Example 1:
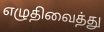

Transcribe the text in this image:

எழுதிவைத்து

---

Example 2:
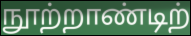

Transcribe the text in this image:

நூற்றாண்டிற்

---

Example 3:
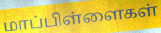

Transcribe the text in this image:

மாப்பிள்ளைகள்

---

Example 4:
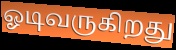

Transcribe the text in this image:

ஓடிவருகிறது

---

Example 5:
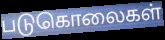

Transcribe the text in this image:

படுகொலைகள்